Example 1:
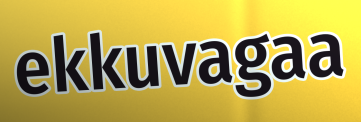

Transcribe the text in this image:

ekkuvagaa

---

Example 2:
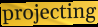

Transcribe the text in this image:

projecting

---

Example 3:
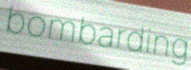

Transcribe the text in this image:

bombarding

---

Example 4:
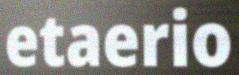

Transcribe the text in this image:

etaerio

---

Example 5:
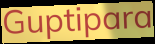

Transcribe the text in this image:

Guptipara